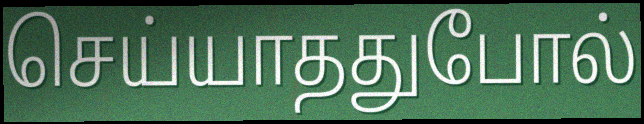
செய்யாததுபோல்